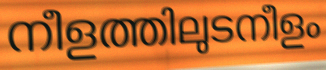
നീളത്തിലുടനീളം